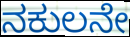
ನಕುಲನೇ